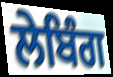
ਲੇਬਿੰਗ